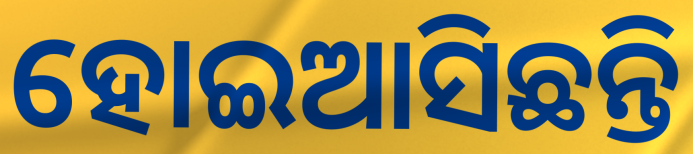
ହୋଇଆସିଛନ୍ତି